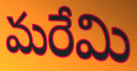
మరేమి